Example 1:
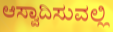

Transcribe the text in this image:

ಆಸ್ವಾದಿಸುವಲ್ಲಿ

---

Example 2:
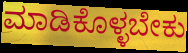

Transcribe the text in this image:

ಮಾಡಿಕೊಳ್ಳಬೇಕು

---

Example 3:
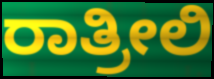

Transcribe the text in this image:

ರಾತ್ರೀಲಿ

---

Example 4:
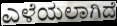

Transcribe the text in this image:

ಎಳೆಯಲಾಗಿದೆ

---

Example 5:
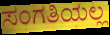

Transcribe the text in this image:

ಸಂಗತಿಯಲ್ಲ